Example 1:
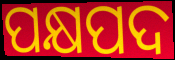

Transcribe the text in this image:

ପକ୍ଷପଦ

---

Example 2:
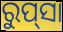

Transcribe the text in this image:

ରୁପ୍‍ସା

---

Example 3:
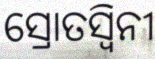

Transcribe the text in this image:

ସ୍ରୋତସ୍ୱିନୀ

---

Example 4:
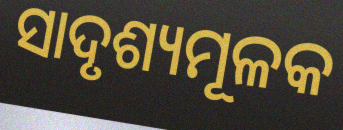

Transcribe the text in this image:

ସାଦୃଶ୍ୟମୂଳକ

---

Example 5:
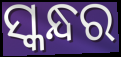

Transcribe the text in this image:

ସ୍କନ୍ଧର